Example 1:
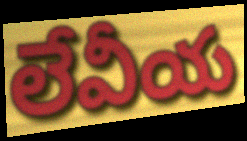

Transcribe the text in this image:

లేవీయ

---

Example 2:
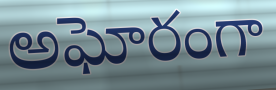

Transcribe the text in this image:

అఘోరంగా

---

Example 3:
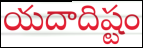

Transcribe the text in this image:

యదాదిష్టం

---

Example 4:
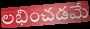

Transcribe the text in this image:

లభించడమే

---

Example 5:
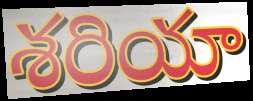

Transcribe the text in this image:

శరియా